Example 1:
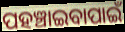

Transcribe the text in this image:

ପହଞ୍ଚାଇବାପାଇଁ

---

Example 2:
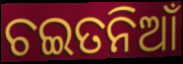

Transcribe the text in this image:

ଚଇତନିଆଁ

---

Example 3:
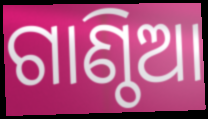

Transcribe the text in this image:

ଗାଣ୍ଠିଆ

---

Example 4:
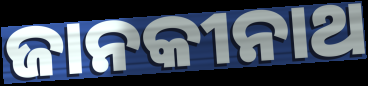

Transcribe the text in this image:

ଜାନକୀନାଥ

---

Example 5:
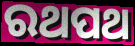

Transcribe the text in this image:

ରଥପଥ